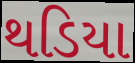
થડિયા